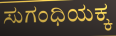
ಸುಗಂಧಿಯಕ್ಕ